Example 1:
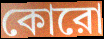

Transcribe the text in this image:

কোরো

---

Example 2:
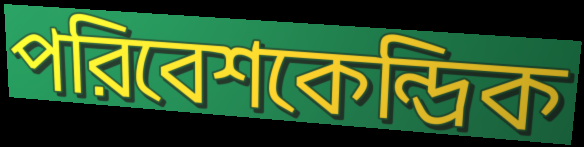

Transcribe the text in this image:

পরিবেশকেন্দ্রিক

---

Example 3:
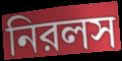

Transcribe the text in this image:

নিরলস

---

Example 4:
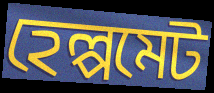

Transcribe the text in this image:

হেল্পমেট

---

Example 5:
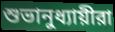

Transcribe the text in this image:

শুভানুধ্যায়ীরা